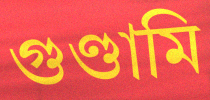
গুণ্ডামি